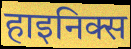
हाइनिक्स